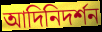
আদিনিদর্শন